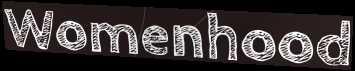
Womenhood